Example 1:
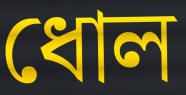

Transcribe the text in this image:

ধোল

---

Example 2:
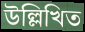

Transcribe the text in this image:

উল্লিখিত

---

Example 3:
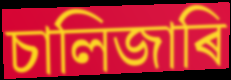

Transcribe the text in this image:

চালিজাৰি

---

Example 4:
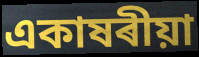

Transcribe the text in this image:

একাষৰীয়া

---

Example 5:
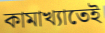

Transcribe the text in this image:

কামাখ্যাতেই